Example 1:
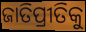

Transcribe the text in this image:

ଜାତିପ୍ରୀତିକୁ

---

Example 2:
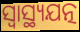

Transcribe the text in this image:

ସ୍ୱାସ୍ଥ୍ୟଯତ୍ନ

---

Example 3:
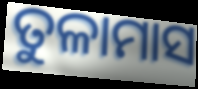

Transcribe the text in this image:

ତୁଳାମାସ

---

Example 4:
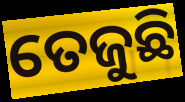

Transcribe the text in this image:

ତେଜୁଛି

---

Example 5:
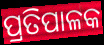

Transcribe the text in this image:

ପ୍ରତିପାଳକ